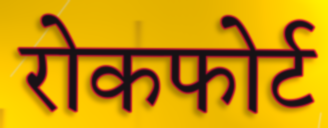
रोकफोर्ट